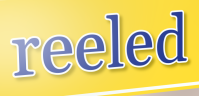
reeled